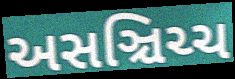
અસઞ્ચિચ્ચ